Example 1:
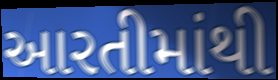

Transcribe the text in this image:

આરતીમાંથી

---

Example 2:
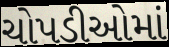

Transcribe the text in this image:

ચોપડીઓમાં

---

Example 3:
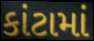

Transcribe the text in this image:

કાંટામાં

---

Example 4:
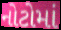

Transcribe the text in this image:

નોટોમાં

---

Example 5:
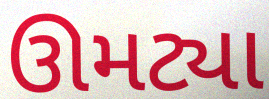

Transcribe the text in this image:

ઊમટ્યા